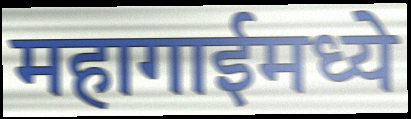
महागाईमध्ये